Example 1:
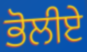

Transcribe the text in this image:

ਭੋਲੀਏ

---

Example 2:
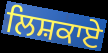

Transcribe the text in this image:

ਲਿਸ਼ਕਾਏ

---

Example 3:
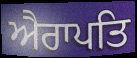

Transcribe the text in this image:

ਐਰਾਪਤਿ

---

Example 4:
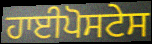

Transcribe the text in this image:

ਹਾਈਪੋਸਟੇਸ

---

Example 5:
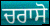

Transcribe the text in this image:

ਚਰਾਸੋ